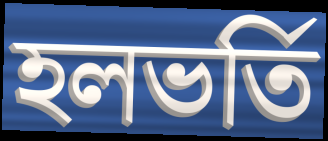
হলভর্তি